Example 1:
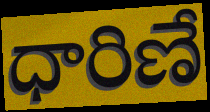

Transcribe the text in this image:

ధారిణే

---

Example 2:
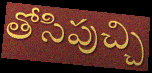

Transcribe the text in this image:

తోసిపుచ్చి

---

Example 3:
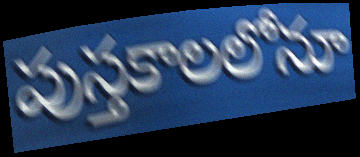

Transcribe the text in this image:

పుస్తకాలలోనూ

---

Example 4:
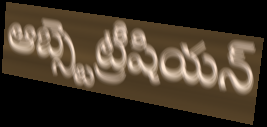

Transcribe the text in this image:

ఆబ్స్టెట్రీషియన్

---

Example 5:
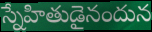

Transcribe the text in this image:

స్నేహితుడైనందున